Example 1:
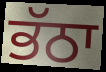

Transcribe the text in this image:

ਭੱਠਾ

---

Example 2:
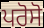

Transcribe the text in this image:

ਪਰੋਸੋ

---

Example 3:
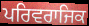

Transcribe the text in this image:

ਪਰਿਵਰਾਜਿਕ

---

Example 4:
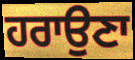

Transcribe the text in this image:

ਹਰਾਉਣਾ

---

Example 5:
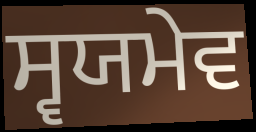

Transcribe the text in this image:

ਸ੍ਵਯਮੇਵ